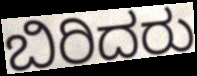
ಬಿರಿದರು